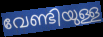
വേണ്ടിയുള്ള